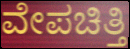
ವೇಪಚಿತ್ತಿ